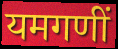
यमगणीं